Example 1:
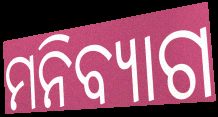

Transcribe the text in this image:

ମନିବ୍ୟାଗ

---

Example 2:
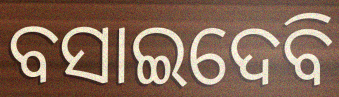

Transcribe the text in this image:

ବସାଇଦେବି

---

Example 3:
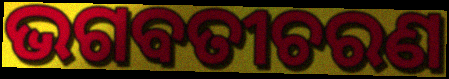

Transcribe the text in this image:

ଭଗବତୀଚରଣ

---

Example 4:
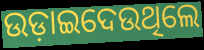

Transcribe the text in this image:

ଉଡ଼ାଇଦେଉଥିଲେ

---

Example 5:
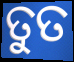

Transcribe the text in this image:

ତୁତ